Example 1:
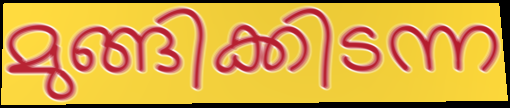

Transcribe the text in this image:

മുങ്ങിക്കിടന്ന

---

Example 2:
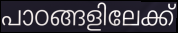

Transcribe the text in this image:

പാഠങ്ങളിലേക്ക്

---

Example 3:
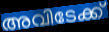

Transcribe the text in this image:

അവിടേക്ക്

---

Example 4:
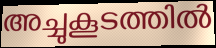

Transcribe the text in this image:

അച്ചുകൂടത്തിൽ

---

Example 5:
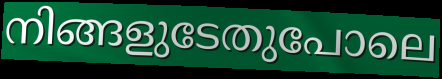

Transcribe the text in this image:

നിങ്ങളുടേതുപോലെ